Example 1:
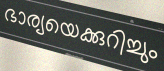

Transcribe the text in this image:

ഭാര്യയെക്കുറിച്ചും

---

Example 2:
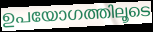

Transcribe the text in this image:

ഉപയോഗത്തിലൂടെ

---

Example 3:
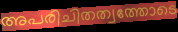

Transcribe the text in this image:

അപരിചിതത്വത്തോടെ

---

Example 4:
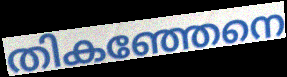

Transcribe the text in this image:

തികഞ്ഞേനെ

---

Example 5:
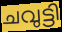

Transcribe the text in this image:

ചവുട്ടി